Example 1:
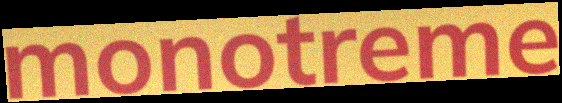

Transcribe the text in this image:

monotreme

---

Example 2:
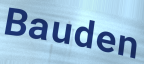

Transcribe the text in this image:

Bauden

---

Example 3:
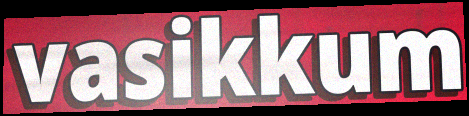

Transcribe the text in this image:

vasikkum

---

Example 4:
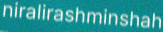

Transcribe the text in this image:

niralirashminshah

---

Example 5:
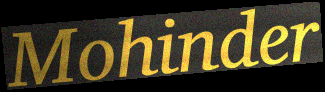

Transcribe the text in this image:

Mohinder